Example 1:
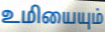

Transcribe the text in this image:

உமியையும்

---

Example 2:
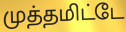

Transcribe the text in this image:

முத்தமிட்டே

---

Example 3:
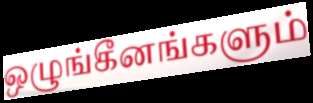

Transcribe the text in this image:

ஒழுங்கீனங்களும்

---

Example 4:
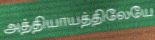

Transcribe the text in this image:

அத்தியாயத்திலேயே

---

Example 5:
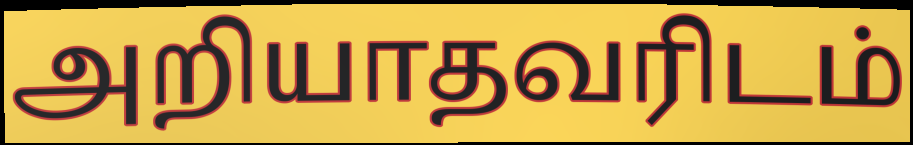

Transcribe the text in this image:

அறியாதவரிடம்